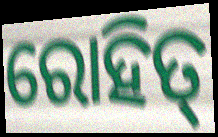
ରୋହିତ୍